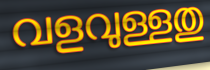
വളവുള്ളതു